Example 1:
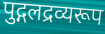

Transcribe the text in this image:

पुद्गलद्रव्यरूप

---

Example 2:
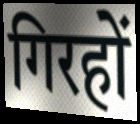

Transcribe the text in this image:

गिरहों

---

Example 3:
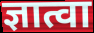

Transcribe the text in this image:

ज्ञात्वा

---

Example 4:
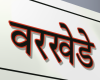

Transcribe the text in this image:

वरखेडे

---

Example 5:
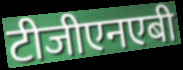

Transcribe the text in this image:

टीजीएनएबी